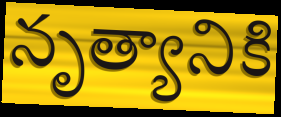
నృత్యానికి